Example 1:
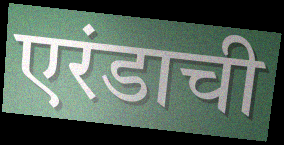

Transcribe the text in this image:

एरंडाची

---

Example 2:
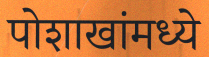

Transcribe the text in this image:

पोशाखांमध्ये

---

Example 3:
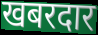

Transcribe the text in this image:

खबरदार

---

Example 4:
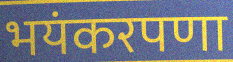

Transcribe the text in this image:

भयंकरपणा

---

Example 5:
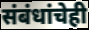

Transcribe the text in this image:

संबंधांचेही